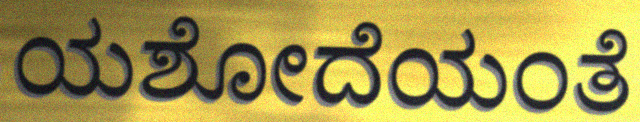
ಯಶೋದೆಯಂತೆ